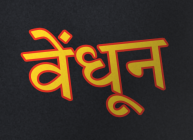
वेंधून